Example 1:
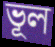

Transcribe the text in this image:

ভূল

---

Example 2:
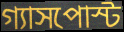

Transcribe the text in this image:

গ্যাসপোস্ট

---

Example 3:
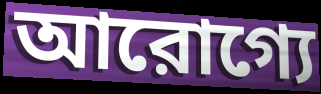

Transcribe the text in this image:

আরোগ্যে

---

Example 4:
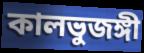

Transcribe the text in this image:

কালভুজঙ্গী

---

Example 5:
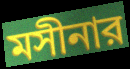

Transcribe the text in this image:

মসীনার